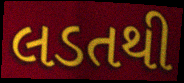
લડતથી